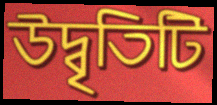
উদ্বৃতিটি